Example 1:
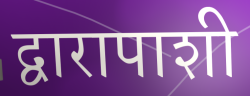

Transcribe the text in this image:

द्वारापाशी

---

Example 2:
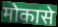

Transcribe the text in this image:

मोकासे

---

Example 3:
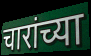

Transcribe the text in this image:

चारांच्या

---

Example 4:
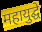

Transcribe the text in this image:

महायुद्घे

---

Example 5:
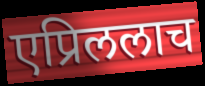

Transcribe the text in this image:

एप्रिललाच